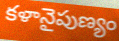
కళానైపుణ్యం